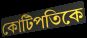
কোটিপতিকে